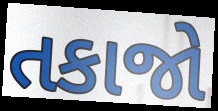
તકાજો